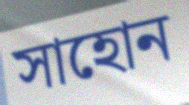
সাহোন